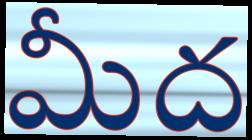
మీద